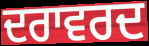
ਦਰਾਵਰਦ